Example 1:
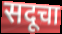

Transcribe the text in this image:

सदूचा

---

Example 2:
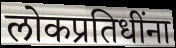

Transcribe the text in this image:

लोकप्रतिधींना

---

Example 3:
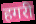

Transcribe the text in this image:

हगरी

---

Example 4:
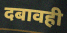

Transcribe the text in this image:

दबावही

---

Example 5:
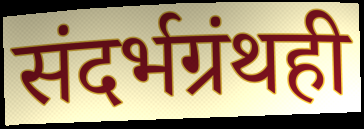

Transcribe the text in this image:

संदर्भग्रंथही